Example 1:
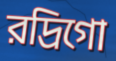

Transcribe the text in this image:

রদ্রিগো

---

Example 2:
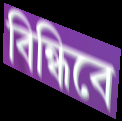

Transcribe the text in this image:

বিন্ধিবে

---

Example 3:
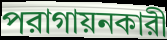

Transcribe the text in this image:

পরাগায়নকারী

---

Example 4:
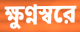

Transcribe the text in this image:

ক্ষুণ্নস্বরে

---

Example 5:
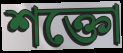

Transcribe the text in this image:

শক্তো